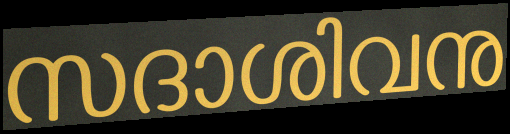
സദാശിവനു